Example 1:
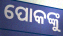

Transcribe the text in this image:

ପୋକଙ୍କୁ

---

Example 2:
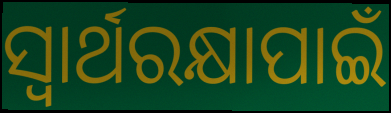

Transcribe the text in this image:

ସ୍ୱାର୍ଥରକ୍ଷାପାଇଁ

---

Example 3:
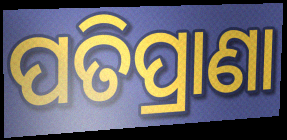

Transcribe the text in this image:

ପତିପ୍ରାଣା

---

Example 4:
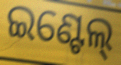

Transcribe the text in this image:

ଇଣ୍ଟେଲ୍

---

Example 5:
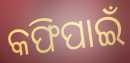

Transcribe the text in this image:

କଫିପାଇଁ